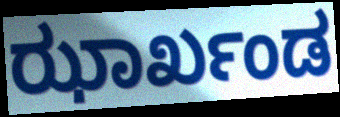
ಝಾರ್ಖಂಡ